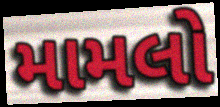
મામલો